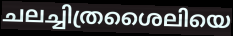
ചലച്ചിത്രശൈലിയെ